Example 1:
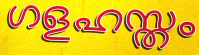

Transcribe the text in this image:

ഗളഹസ്തം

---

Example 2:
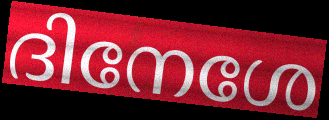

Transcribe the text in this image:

ദിനേശേ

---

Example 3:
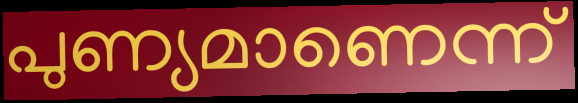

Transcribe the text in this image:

പുണ്യമാണെന്ന്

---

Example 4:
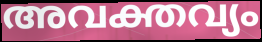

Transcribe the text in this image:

അവക്തവ്യം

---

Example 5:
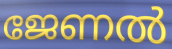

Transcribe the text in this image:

ജേണൽ